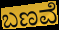
ಬಣವೆ